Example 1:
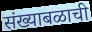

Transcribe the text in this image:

संख्याबळाची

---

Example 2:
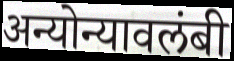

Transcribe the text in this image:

अन्योन्यावलंबी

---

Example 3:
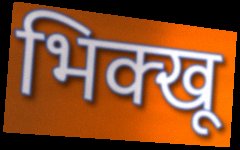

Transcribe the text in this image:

भिक्‍खू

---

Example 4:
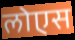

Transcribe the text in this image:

लोएस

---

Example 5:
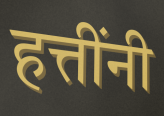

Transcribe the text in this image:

हत्तींनी